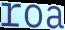
roa